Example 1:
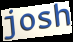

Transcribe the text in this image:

josh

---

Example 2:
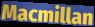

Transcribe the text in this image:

Macmillan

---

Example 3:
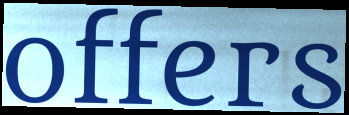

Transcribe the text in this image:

offers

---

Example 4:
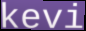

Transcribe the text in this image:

kevi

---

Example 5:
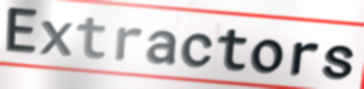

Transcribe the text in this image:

Extractors